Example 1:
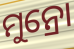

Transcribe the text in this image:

ମୁନ୍ରୋ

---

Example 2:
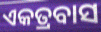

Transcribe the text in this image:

ଏକତ୍ରବାସ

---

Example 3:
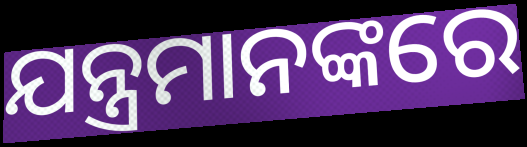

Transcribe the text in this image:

ଯନ୍ତ୍ରମାନଙ୍କରେ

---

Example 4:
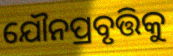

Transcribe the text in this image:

ଯୌନପ୍ରବୃତ୍ତିକୁ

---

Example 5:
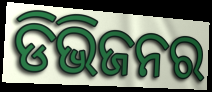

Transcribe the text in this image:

ଡିଭିଜନର